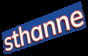
sthanne